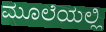
ಮೂಲೆಯಲ್ಲಿ